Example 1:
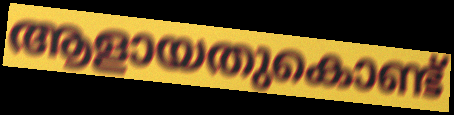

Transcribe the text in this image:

ആളായതുകൊണ്ട്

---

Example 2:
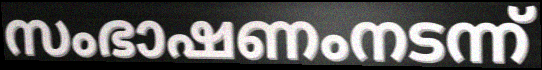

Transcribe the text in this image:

സംഭാഷണംനടന്ന്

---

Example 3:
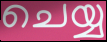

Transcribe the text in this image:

ചെയ്യ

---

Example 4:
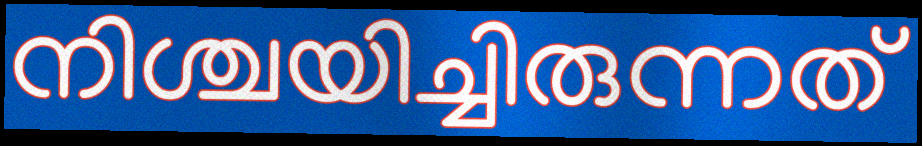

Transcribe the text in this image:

നിശ്ചയിച്ചിരുന്നത്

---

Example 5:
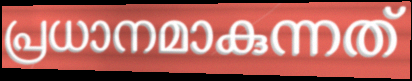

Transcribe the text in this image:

പ്രധാനമാകുന്നത്